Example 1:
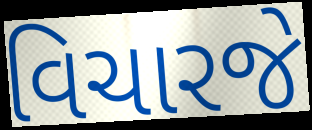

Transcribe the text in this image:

વિચારજે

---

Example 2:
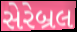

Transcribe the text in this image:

સેરેબ્રલ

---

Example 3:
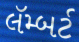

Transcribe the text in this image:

લૅમ્બર્ટ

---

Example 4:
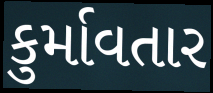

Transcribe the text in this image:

કુર્માવતાર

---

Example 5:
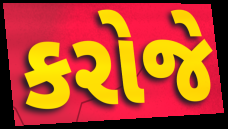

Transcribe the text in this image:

કરોજે